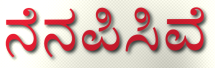
ನೆನಪಿಸಿವೆ